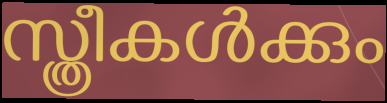
സ്ത്രീകൾക്കും